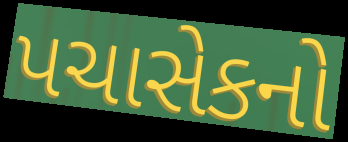
પચાસેકનો